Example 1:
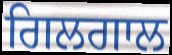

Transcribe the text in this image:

ਗਿਲਗਾਲ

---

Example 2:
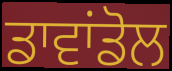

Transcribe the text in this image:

ਡਾਵਾਂਡੋਲ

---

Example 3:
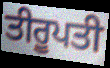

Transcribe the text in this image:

ਤੀਰੂਪਤੀ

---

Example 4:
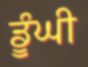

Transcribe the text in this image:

ਡੂੰਘੀ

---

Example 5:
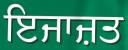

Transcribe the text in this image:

ਇਜਾਜ਼ਤ